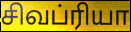
சிவப்ரியா